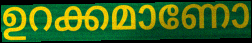
ഉറക്കമാണോ